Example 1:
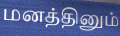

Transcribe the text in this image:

மனத்தினும்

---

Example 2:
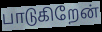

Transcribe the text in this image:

பாடுகிறேன்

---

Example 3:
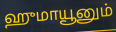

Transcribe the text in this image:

ஹுமாயூனும்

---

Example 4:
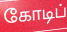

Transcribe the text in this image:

கோடிப்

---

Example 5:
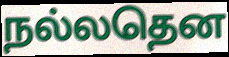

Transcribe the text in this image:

நல்லதென